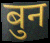
बुन